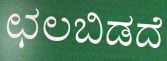
ಛಲಬಿಡದೆ